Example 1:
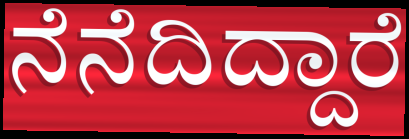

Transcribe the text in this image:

ನೆನೆದಿದ್ದಾರೆ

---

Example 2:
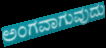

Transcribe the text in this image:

ಅಂಗವಾಗುವುದು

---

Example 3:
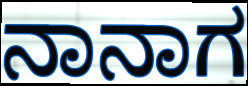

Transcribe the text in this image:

ನಾನಾಗ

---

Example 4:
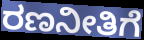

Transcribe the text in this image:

ರಣನೀತಿಗೆ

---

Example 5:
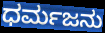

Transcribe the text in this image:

ಧರ್ಮಜನು